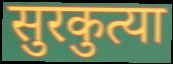
सुरकुत्या